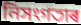
নিসংগতাৰ